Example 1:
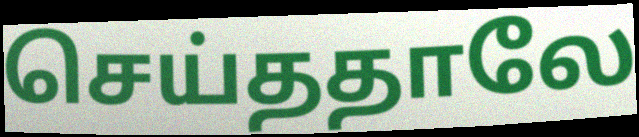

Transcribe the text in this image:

செய்ததாலே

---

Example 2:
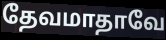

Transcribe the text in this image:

தேவமாதாவே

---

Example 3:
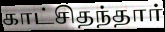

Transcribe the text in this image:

காட்சிதந்தார்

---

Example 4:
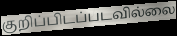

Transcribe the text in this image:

குறிப்பிடப்படவில்லை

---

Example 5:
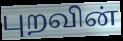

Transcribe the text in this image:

புறவின்